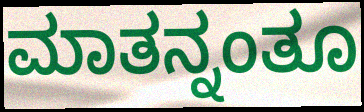
ಮಾತನ್ನಂತೂ